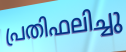
പ്രതിഫലിച്ചു